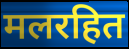
मलरहित